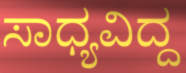
ಸಾಧ್ಯವಿದ್ದ